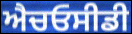
ਐਚਓਸੀਡੀ